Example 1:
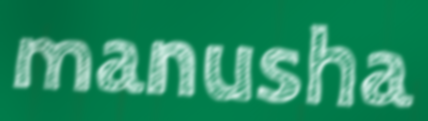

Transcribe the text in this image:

manusha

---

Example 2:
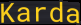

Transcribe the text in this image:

Karda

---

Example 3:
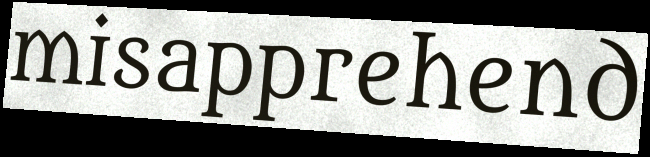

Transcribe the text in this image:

misapprehend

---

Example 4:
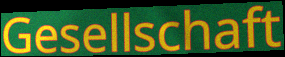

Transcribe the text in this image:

Gesellschaft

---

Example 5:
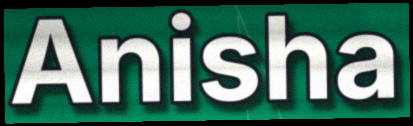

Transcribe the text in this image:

Anisha